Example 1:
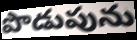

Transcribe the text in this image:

పొడుపును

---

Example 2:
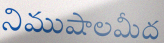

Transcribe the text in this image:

నిముషాలమీద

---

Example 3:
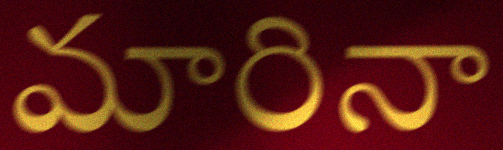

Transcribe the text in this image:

మారినా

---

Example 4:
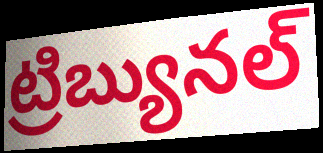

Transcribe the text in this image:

ట్రిబ్యునల్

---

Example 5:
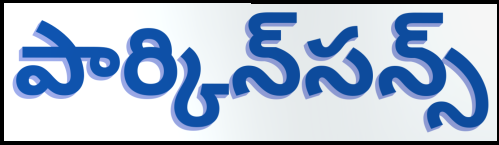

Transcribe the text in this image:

పార్కిన్‌సన్స్